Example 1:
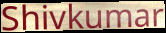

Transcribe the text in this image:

Shivkumar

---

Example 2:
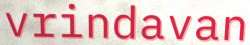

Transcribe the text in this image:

vrindavan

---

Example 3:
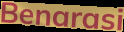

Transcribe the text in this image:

Benarasi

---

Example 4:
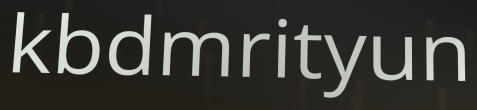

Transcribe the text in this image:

kbdmrityun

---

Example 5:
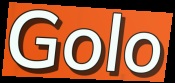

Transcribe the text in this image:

Golo